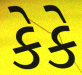
કેકે